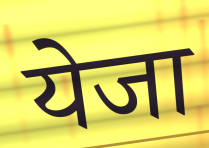
येजा